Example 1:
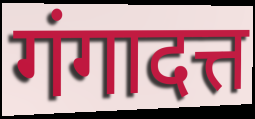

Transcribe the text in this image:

गंगादत्त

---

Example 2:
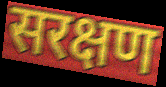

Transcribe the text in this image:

सरक्षण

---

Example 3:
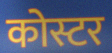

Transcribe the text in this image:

कोस्टर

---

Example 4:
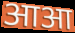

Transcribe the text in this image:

आआ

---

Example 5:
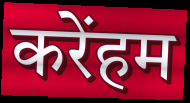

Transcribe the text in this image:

करेंहम